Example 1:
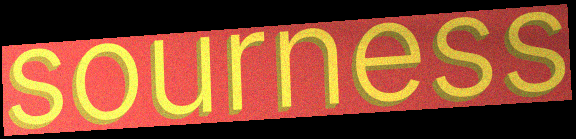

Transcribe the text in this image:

sourness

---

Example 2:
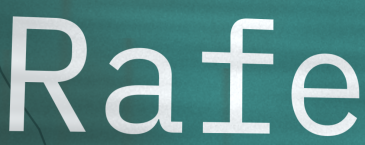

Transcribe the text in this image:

Rafe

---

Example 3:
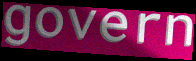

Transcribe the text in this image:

govern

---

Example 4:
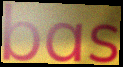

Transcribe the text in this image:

bas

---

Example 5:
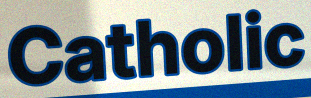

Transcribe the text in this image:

Catholic